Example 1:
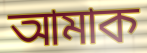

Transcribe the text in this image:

আমাক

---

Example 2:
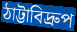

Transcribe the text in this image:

ঠাট্টাবিদ্রুপ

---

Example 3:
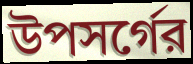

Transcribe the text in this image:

উপসর্গের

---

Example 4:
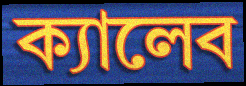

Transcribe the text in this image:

ক্যালেব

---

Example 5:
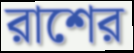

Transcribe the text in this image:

রাশের